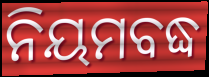
ନିୟମବଦ୍ଧ